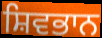
ਸ਼ਿਵਭਾਨ